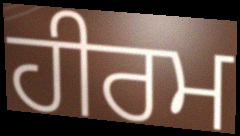
ਹੀਰਮ